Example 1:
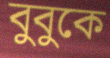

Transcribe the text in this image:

বুবুকে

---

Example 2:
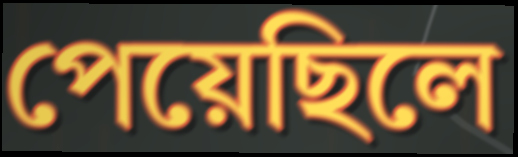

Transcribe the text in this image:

পেয়েছিলে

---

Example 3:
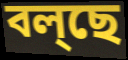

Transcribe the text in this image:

বল্ছে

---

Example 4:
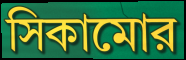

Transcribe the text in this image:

সিকামোর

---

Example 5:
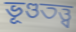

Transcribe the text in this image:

ভূণ্ডতত্ত্ব